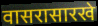
वासरासारखे